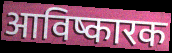
आविष्कारक